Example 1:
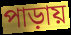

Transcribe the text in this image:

পাড়ায়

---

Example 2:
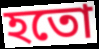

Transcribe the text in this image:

হতো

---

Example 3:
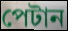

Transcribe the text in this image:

পেটান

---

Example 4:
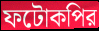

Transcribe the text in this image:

ফটোকপির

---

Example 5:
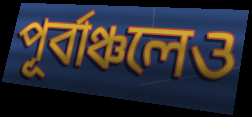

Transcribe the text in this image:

পূর্বাঞ্চলেও